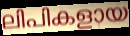
ലിപികളായ